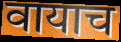
वायाच